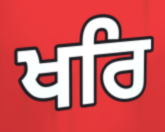
ਖਰਿ